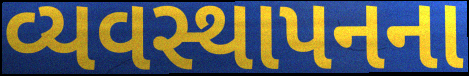
વ્યવસ્થાપનના